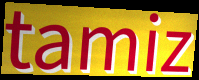
tamiz